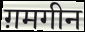
ग़मगीन